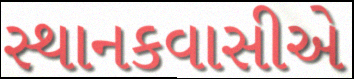
સ્થાનકવાસીએ